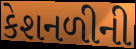
કેશનળીની